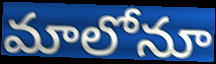
మాలోనూ